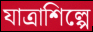
যাত্রাশিল্পে